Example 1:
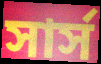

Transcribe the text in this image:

সার্স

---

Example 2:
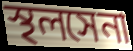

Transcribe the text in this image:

স্থলসেনা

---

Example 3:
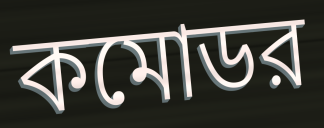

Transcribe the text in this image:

কমোডর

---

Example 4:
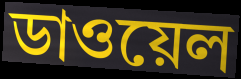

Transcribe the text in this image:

ডাওয়েল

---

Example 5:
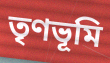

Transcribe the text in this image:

তৃণভূমি